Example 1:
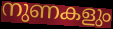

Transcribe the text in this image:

നുണകളും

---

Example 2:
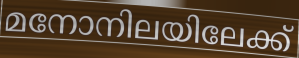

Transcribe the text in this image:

മനോനിലയിലേക്ക്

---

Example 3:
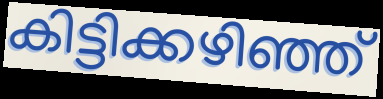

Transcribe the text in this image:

കിട്ടിക്കഴിഞ്ഞ്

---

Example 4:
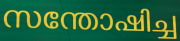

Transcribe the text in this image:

സന്തോഷിച്ച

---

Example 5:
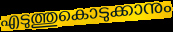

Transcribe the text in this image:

എടുത്തുകൊടുക്കാനും